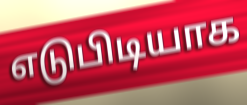
எடுபிடியாக